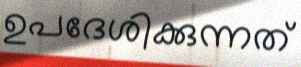
ഉപദേശിക്കുന്നത്